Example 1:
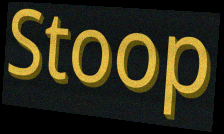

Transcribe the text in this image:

Stoop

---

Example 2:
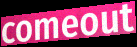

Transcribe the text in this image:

comeout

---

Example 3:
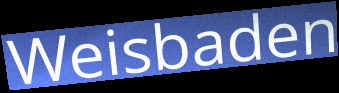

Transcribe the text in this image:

Weisbaden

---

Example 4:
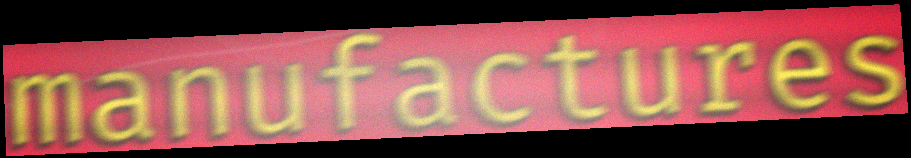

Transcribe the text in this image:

manufactures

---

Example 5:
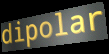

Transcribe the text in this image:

dipolar